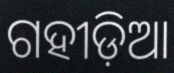
ଗହୀଡ଼ିଆ